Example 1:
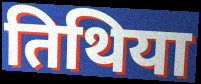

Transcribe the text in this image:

तिथिया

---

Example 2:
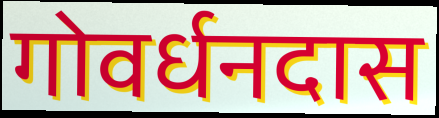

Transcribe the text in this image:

गोवर्धनदास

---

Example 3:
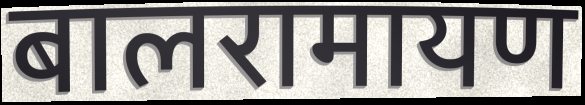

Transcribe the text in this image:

बालरामायण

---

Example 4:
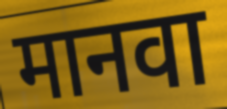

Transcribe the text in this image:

मानवा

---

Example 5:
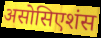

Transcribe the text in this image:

असोसिएशंस